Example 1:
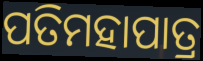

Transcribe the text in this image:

ପତିମହାପାତ୍ର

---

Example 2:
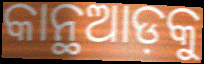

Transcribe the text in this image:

କାନ୍ଥଆଡ଼କୁ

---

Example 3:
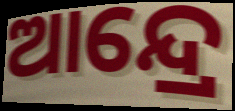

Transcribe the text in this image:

ଆନ୍ଦ୍ରେ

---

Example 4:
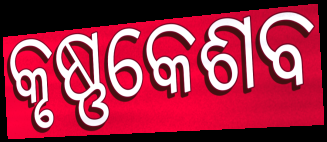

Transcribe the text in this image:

କୃଷ୍ଣକେଶବ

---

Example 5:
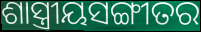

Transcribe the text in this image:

ଶାସ୍ତ୍ରୀୟସଙ୍ଗୀତର